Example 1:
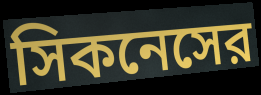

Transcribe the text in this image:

সিকনেসের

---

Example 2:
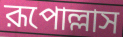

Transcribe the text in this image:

রূপোল্লাস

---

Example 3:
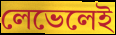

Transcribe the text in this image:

লেভেলেই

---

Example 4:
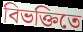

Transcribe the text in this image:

বিভক্তিতে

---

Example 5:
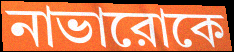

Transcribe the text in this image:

নাভারোকে